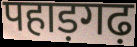
पहाड़गढ़